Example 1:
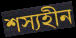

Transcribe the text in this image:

শস্যহীন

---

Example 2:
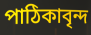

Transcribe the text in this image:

পাঠিকাবৃন্দ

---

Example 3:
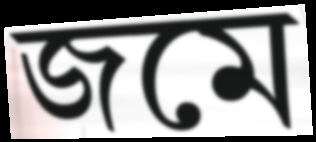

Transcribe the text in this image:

জমে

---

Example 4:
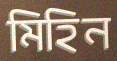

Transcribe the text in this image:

মিহিন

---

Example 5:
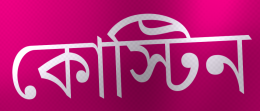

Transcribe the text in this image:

কোস্টিন